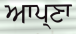
ਆਪ੍ਣਾ